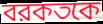
বরকতকে